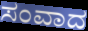
ಸಂವಾದ